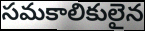
సమకాలికులైన